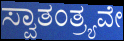
ಸ್ವಾತಂತ್ರ್ಯವೇ